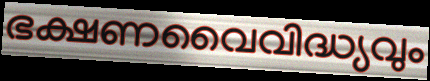
ഭക്ഷണവൈവിദ്ധ്യവും